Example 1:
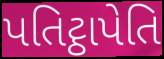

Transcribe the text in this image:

પતિટ્ઠાપેતિ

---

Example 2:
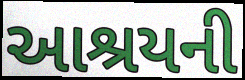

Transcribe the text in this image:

આશ્રયની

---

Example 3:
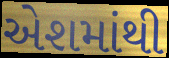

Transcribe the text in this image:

એશમાંથી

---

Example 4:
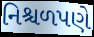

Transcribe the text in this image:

નિશ્ચળપણે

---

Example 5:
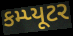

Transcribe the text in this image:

કમ્પ્યૂટર